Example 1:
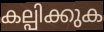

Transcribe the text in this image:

കല്പിക്കുക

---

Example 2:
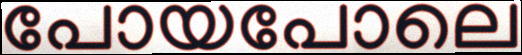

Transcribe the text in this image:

പോയപോലെ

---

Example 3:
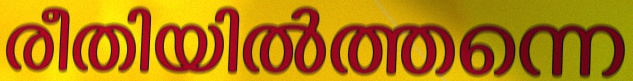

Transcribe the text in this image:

രീതിയിൽത്തന്നെ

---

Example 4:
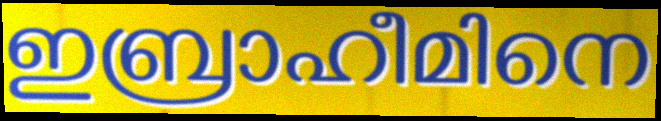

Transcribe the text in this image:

ഇബ്രാഹീമിനെ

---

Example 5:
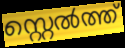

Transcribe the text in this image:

സ്റ്റെൽത്ത്